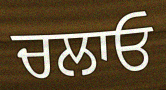
ਚਲਾਓ